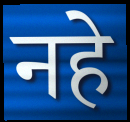
नहे